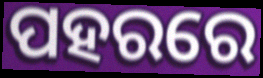
ପହରରେ